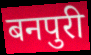
बनपुरी